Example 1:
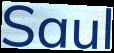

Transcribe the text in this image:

Saul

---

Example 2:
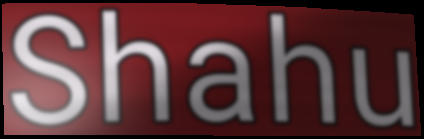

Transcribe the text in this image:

Shahu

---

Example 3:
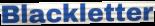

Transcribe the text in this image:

Blackletter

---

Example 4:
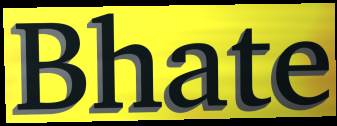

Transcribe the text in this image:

Bhate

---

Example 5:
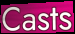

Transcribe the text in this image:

Casts